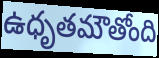
ఉధృతమౌతోంది